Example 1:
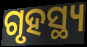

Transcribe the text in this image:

ଗୃହସ୍ଥ୍ୟ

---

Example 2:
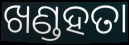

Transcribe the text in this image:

ଖଣ୍ଡହତା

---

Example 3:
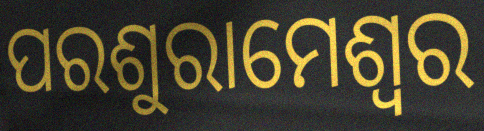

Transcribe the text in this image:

ପରଶୁରାମେଶ୍ୱର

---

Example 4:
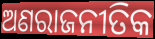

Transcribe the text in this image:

ଅଣରାଜନୀତିକ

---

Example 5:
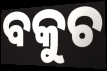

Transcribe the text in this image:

ବକୁଚ